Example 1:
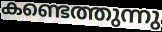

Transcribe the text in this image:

കണ്ടെത്തുന്നു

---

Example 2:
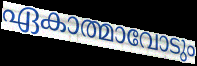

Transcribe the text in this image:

ഏകാത്മാവോടും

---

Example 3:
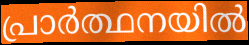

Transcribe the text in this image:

പ്രാർത്ഥനയിൽ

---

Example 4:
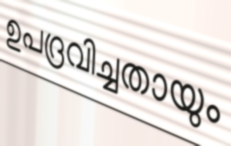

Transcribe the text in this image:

ഉപദ്രവിച്ചതായും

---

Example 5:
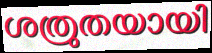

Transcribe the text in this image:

ശത്രുതയായി